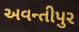
અવન્તીપુર